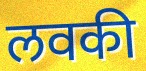
लवकी